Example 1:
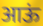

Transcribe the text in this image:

आऊं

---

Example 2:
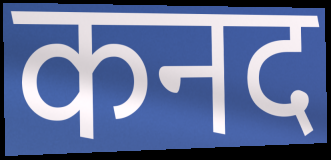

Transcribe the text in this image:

कनद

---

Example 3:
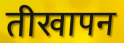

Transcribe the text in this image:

तीखापन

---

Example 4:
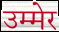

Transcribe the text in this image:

उम्मेर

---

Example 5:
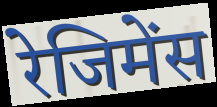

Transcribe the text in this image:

रेजिमेंस